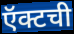
ऍक्टची